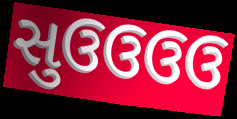
સુઉઉઉઉ